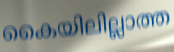
കൈയിലില്ലാത്ത